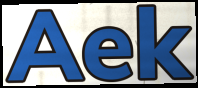
Aek